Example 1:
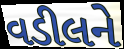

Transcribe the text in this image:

વડીલને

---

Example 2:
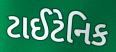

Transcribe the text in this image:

ટાઈટેનિક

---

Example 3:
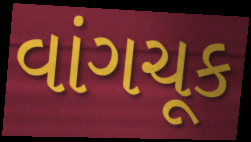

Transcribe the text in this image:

વાંગચૂક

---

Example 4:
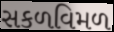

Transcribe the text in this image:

સકળવિમળ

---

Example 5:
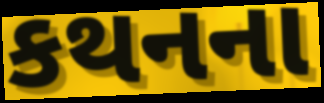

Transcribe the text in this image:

કથનના